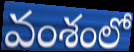
వంశంలో